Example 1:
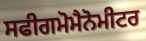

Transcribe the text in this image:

ਸਫੀਗਮੋਮੈਨੋਮੀਟਰ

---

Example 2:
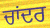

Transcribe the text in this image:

ਚਾਂਦਰ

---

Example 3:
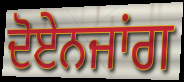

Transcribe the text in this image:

ਦੋਏਨਜਾਂਗ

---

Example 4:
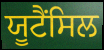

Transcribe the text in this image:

ਯੂਟੈਂਸਿਲ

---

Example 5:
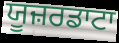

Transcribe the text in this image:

ਯੂਜ਼ਰਡਾਟਾ